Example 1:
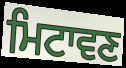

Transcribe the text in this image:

ਮਿਟਾਵਣ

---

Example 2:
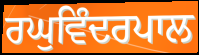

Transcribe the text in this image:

ਰਘੁਵਿੰਦਰਪਾਲ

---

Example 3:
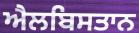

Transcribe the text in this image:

ਐਲਬਿਸਤਾਨ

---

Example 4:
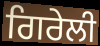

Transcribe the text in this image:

ਗਿਰੇਲੀ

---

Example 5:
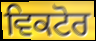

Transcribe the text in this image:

ਵਿਕਟੋਰ